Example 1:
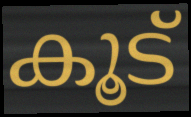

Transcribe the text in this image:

കൂട്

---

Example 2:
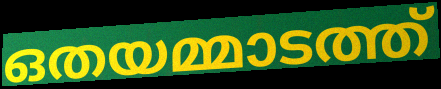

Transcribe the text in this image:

ഒതയമ്മാടത്ത്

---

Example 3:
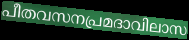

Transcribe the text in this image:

പീതവസനപ്രമദാവിലാസ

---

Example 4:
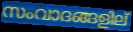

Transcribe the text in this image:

സംവാദങ്ങളില്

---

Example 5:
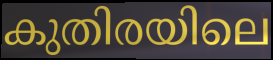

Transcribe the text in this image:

കുതിരയിലെ